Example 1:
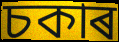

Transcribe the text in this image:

চকাৰ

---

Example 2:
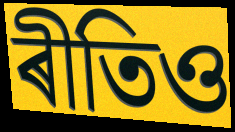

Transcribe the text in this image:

ৰীতিও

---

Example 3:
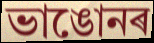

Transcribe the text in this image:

ভাঙোনৰ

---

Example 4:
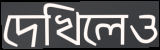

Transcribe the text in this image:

দেখিলেও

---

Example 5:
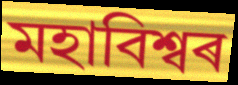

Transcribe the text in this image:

মহাবিশ্বৰ